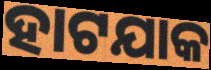
ହାଟଯାକ